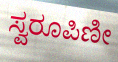
ಸ್ವರೂಪಿಣೀ